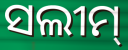
ସଲୀମ୍